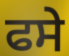
ਫਸੇ